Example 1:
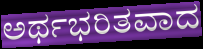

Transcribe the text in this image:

ಅರ್ಥಭರಿತವಾದ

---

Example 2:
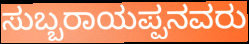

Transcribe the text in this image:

ಸುಬ್ಬರಾಯಪ್ಪನವರು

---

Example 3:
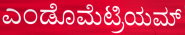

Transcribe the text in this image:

ಎಂಡೊಮೆಟ್ರಿಯಮ್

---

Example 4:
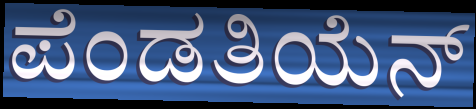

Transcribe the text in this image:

ಪೆಂಡತಿಯೆನ್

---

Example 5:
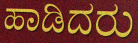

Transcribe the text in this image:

ಹಾಡಿದರು